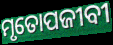
ମୃତୋପଜୀବୀ